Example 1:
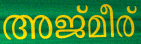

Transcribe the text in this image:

അജ്മീര്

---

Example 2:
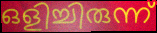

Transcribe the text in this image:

ഒളിച്ചിരുന്ന്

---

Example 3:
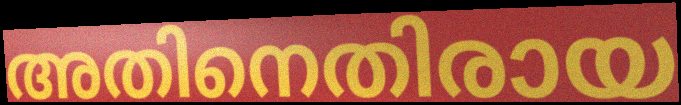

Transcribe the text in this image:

അതിനെതിരായ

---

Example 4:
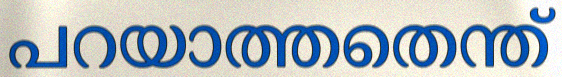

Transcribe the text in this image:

പറയാത്തതെന്ത്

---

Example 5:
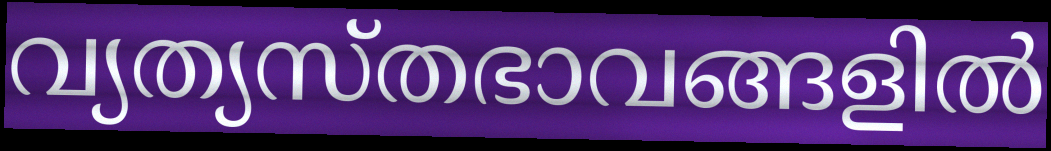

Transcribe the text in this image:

വ്യത്യസ്തഭാവങ്ങളിൽ